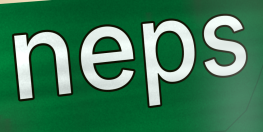
neps